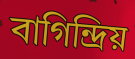
বাগিন্দ্ৰিয়